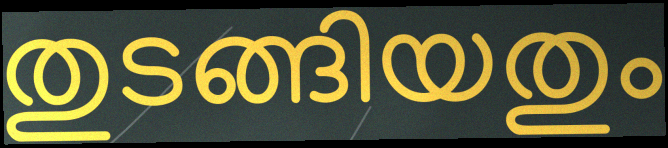
തുടങ്ങിയതും